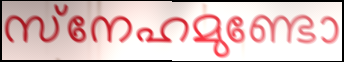
സ്‌നേഹമുണ്ടോ